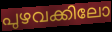
പുഴവക്കിലോ